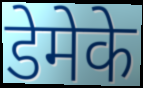
डेमेके